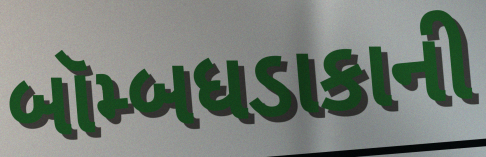
બૉમ્બધડાકાની